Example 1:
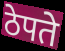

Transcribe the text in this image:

ठेपते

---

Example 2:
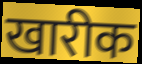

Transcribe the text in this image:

खारीक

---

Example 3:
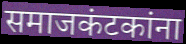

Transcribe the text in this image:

समाजकंटकांना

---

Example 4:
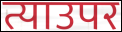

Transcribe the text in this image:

त्याउपर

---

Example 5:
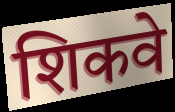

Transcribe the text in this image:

शिकवे